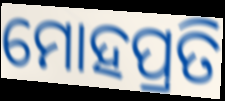
ମୋହପ୍ରତି